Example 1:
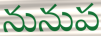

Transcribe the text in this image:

నునుప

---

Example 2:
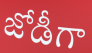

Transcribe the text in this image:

జోడీగా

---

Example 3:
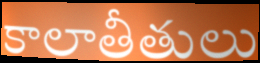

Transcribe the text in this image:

కాలాతీతులు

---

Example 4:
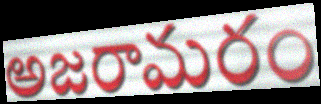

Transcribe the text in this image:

అజరామరం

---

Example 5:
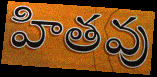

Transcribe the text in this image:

హితవు